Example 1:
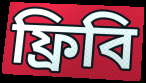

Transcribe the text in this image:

ফ্রিবি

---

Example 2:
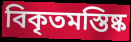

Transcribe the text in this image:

বিকৃতমস্তিষ্ক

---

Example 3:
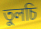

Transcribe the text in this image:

তুলচি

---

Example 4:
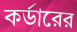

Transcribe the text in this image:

কর্ডারের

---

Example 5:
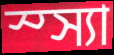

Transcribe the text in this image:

স্স্যা